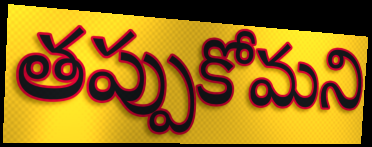
తప్పుకోమని